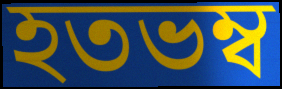
হতভম্ব